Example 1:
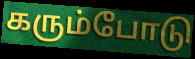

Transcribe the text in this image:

கரும்போடு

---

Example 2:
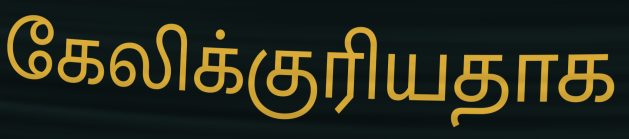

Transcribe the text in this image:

கேலிக்குரியதாக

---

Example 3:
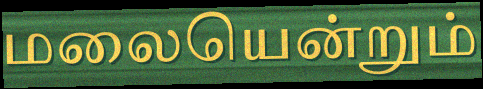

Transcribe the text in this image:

மலையென்றும்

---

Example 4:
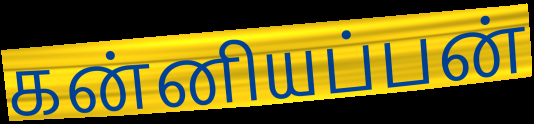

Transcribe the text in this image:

கன்னியப்பன்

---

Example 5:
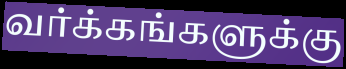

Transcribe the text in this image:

வர்க்கங்களுக்கு